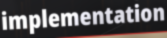
implementation